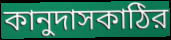
কানুদাসকাঠির